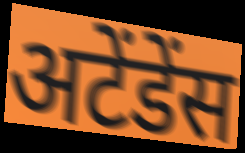
अटेंडेंस